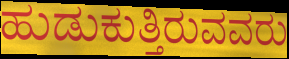
ಹುಡುಕುತ್ತಿರುವವರು